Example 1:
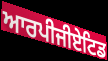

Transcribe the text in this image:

ਆਰਪੀਜੀਏਟਿਡ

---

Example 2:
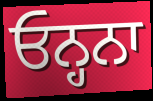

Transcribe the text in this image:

ਓਨ੍ਹਨਾ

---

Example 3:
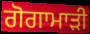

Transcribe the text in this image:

ਗੋਗਾਮਾੜੀ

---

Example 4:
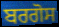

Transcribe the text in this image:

ਬਰਗੋਸ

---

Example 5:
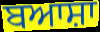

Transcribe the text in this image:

ਬਆਸ਼ਾ